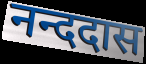
नन्ददास